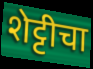
शेट्टीचा